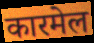
कारमेल